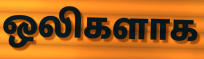
ஒலிகளாக